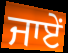
ਜਾਏਂ